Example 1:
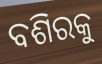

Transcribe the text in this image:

ବଶିରକୁ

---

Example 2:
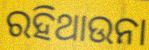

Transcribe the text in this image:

ରହିଥାଉନା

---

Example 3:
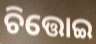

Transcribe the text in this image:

ଚିତ୍ତୋଇ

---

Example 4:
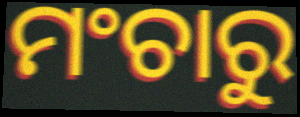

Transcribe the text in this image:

ମଂଚାରୁ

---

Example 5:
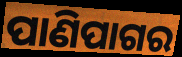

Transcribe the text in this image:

ପାଣିପାଗର